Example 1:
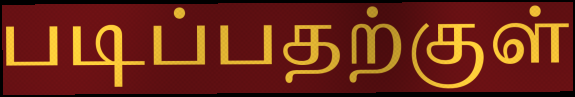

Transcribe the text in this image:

படிப்பதற்குள்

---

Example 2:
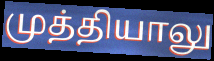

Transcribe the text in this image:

முத்தியாலு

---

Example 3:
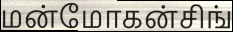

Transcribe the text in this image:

மன்மோகன்சிங்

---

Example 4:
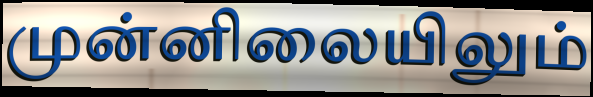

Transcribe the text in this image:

முன்னிலையிலும்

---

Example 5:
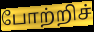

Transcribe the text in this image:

போற்றிச்